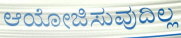
ಆಯೋಜಿಸುವುದಿಲ್ಲ